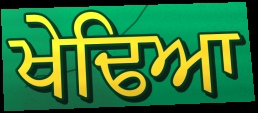
ਖੇਢਿਆ